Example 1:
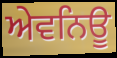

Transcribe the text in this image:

ਅੇਵਨਿਊ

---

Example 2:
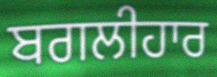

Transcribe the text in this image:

ਬਗਲੀਹਾਰ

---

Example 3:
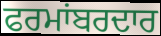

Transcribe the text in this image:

ਫਰਮਾਂਬਰਦਾਰ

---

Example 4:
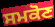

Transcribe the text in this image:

ਸਮਕੋਣ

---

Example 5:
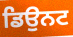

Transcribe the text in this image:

ਡਿਉਨਟ